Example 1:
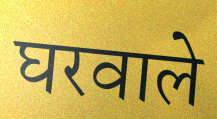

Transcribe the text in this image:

घरवाले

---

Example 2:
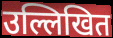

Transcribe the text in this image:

उल्लिखित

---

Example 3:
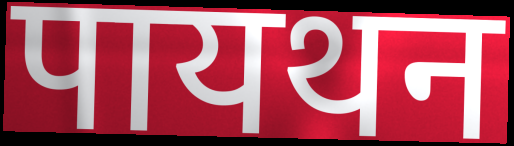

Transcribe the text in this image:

पायथन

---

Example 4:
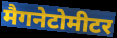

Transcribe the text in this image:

मैगनेटोमीटर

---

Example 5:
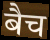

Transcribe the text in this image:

बैच